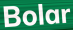
Bolar